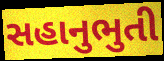
સહાનુભુતી